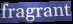
fragrant